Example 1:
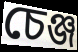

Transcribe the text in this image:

চেঞ্জ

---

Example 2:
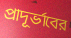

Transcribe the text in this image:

প্রাদূর্ভাবের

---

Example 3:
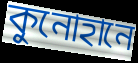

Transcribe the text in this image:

কুনোহানে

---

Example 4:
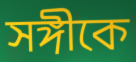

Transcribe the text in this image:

সঙ্গীকে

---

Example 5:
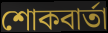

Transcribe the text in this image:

শোকবার্তা